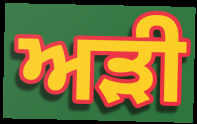
ਅੜੀ